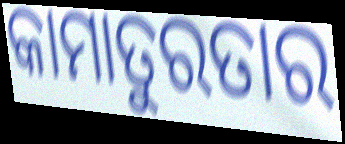
କାମାତୁରତାର